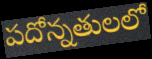
పదోన్నతులలో